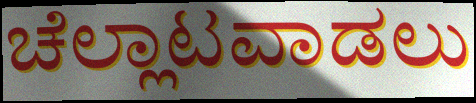
ಚೆಲ್ಲಾಟವಾಡಲು